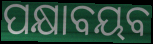
ପକ୍ଷାବୟବ